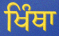
ਖਿੰਥਾ